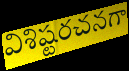
విశిష్టరచనగా